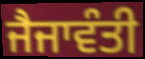
ਜੈਜਾਵੰਤੀ